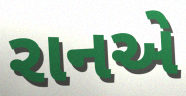
રાનએ